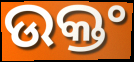
ଉକ୍ତଂ